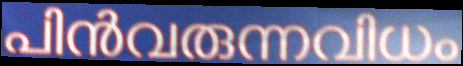
പിൻവരുന്നവിധം